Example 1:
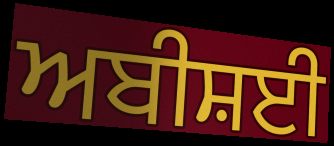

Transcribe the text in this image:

ਅਬੀਸ਼ਈ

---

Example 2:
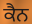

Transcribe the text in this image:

ਕੈਨ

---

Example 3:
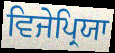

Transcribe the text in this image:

ਵਿਜੇਪ੍ਰਿਯਾ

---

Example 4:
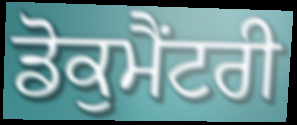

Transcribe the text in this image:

ਡੋਕੁਮੈਂਟਰੀ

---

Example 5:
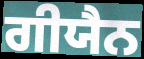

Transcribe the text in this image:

ਗੀਯੈਨ